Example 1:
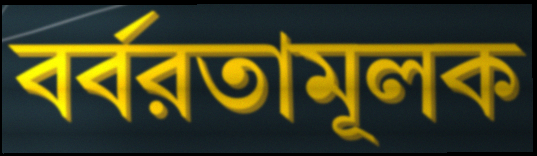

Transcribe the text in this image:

বর্বরতামূলক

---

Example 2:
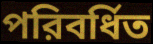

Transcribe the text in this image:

পরিবর্ধিত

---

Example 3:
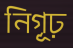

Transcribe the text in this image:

নিগূঢ়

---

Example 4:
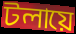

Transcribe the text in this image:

টলায়ে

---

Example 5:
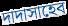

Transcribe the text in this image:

দাদাসাহেব